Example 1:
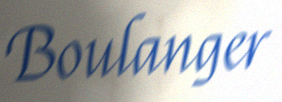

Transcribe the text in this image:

Boulanger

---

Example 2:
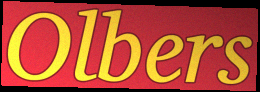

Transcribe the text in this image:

Olbers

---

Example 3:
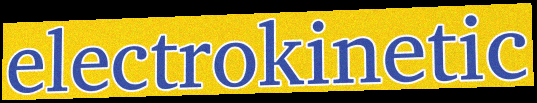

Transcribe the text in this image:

electrokinetic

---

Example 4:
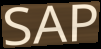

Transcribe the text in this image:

SAP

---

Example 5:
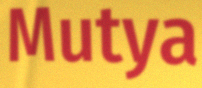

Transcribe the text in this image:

Mutya